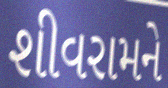
શીવરામને